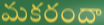
మకరందా